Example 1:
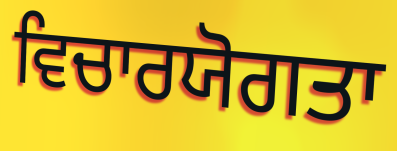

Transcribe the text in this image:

ਵਿਚਾਰਯੋਗਤਾ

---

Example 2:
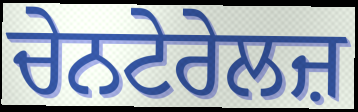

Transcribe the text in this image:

ਚੇਨਟੇਰੇਲਜ਼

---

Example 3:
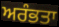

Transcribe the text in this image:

ਅਰੰਭਤਾ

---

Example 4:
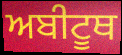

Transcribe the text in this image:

ਅਬੀਟੂਥ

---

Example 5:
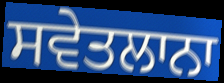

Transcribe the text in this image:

ਸਵੇਤਲਾਨਾ